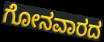
ಗೋನವಾರದ